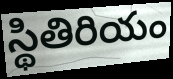
స్థితిరియం